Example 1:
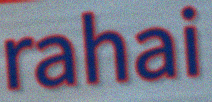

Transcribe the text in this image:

rahai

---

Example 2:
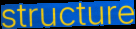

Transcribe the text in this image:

structure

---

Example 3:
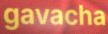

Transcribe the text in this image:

gavacha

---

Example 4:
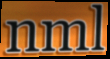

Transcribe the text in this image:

nml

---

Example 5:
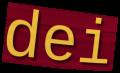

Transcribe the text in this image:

dei